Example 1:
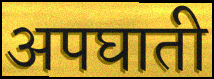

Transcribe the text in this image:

अपघाती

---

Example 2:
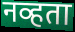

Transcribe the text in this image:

नव्हता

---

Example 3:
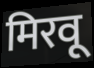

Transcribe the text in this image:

मिरवू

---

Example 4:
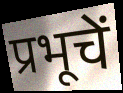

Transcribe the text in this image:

प्रभूचें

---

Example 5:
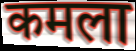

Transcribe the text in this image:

कमला